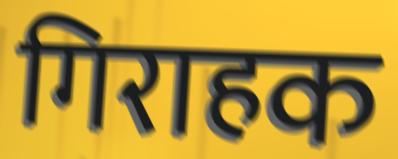
गिराहक